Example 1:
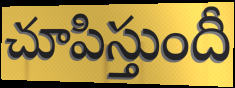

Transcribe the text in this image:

చూపిస్తుందీ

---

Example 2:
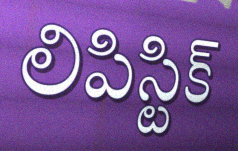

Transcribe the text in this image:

లిపిస్టిక్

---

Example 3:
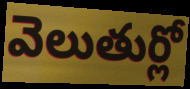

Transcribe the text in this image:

వెలుతుర్లో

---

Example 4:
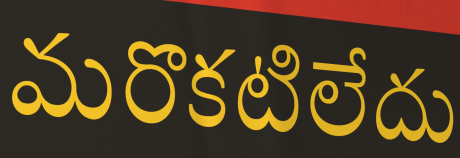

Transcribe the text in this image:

మరొకటిలేదు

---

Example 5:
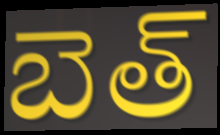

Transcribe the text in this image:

బెత్